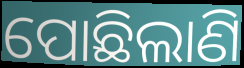
ପୋଛିଲାଣି